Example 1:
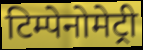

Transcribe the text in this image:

टिम्पेनोमेट्री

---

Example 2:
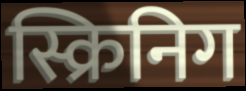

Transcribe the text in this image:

स्क्रिनिग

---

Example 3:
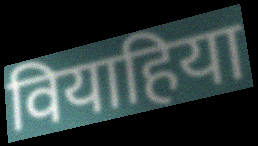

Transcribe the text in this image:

वियाहिया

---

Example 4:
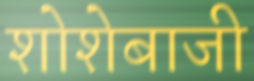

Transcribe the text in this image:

शोशेबाजी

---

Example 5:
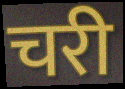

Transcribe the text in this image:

चरी